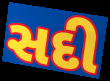
સદી